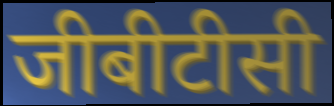
जीबीटीसी